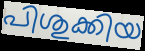
പിശുക്കിയ